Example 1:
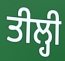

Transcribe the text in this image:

ਤੀਲ੍ਹੀ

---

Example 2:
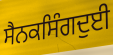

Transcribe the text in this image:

ਸੈਨਕਸਿੰਗਦੁਈ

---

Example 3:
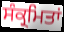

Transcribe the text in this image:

ਸੰਕ੍ਰਮਿਤਾਂ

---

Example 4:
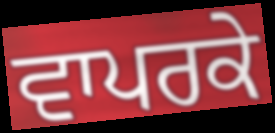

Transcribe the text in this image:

ਵਾਪਰਕੇ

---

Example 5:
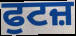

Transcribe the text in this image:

ਫੁਟਜ਼